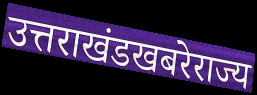
उत्तराखंडखबरेराज्य